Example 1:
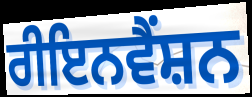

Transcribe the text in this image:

ਰੀਇਨਵੈਂਸ਼ਨ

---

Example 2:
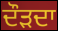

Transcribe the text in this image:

ਦੌੜਦਾ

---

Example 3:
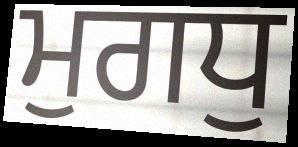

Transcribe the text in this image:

ਮੁਗਧੁ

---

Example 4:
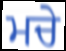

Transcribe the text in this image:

ਮਚੇ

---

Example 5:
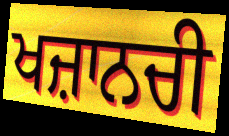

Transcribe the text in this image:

ਖਜ਼ਾਨਚੀ